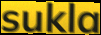
sukla